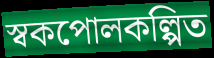
স্বকপোলকল্পিত